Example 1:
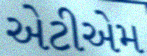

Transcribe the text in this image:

એટીએમ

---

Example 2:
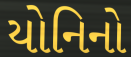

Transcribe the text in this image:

યોનિનો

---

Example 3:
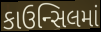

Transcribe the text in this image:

કાઉન્સિલમાં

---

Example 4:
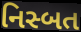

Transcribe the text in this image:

નિસ્બત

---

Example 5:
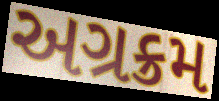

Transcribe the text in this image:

અગ્રક્રમ